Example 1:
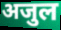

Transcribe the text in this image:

अजुल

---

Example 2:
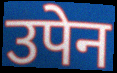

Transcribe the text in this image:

उपेन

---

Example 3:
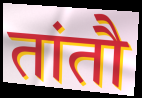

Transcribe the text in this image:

तांतौ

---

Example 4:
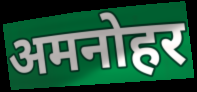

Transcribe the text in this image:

अमनोहर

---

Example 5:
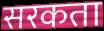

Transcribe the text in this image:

सरकता